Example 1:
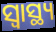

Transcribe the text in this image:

ସ୍ୱାସ୍ଥ୍ୟ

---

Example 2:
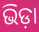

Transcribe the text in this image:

ଭିଡ଼ା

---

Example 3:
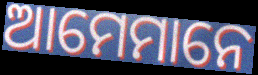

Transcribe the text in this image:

ଆମେମାନେ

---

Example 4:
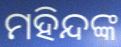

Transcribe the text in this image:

ମହିନ୍ଦଙ୍କ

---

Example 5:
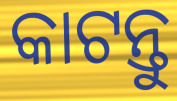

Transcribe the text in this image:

କାଟନ୍ତୁ